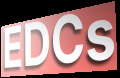
EDCs